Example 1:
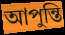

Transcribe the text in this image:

আপুন্তি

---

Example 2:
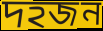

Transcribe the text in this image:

দহজন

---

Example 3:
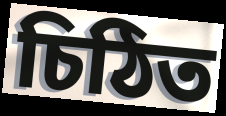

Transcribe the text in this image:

চিঠিত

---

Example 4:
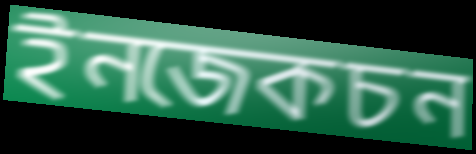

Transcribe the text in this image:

ইনজেকচন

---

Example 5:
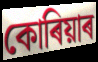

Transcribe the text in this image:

কোৰিয়াৰ